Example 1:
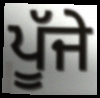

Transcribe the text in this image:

ਪੂੱਜੇ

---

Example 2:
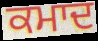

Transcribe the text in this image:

ਕਮਾਦ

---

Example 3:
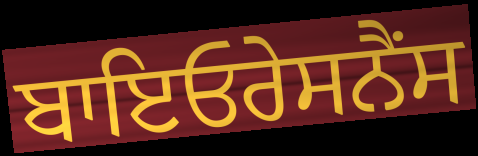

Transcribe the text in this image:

ਬਾਇਓਰੇਸਨੈਂਸ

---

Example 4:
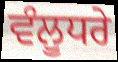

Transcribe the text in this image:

ਵੰਲੂਧਰੇ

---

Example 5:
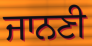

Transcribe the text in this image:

ਜਾਨਣੀ